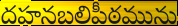
దహనబలిపీఠమును